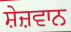
ਸ਼ੇਜ਼ਵਾਨ